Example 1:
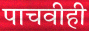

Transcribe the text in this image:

पाचवीही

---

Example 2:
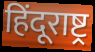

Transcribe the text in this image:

हिंदूराष्ट्र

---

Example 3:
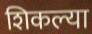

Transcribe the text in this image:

शिकल्या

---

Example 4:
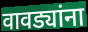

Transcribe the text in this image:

वावड्यांना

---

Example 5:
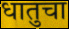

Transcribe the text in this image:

धातुचा